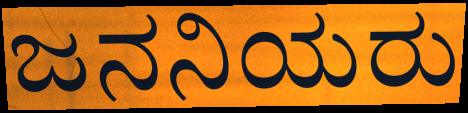
ಜನನಿಯರು